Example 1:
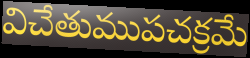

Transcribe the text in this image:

విచేతుముపచక్రమే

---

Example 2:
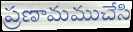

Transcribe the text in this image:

ప్రణామముచేసి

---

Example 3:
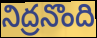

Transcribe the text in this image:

నిద్రనొంది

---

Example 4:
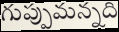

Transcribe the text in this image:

గుప్పుమన్నది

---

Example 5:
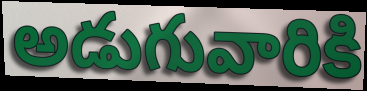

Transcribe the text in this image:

అడుగువారికి